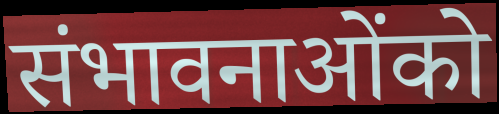
संभावनाओंको